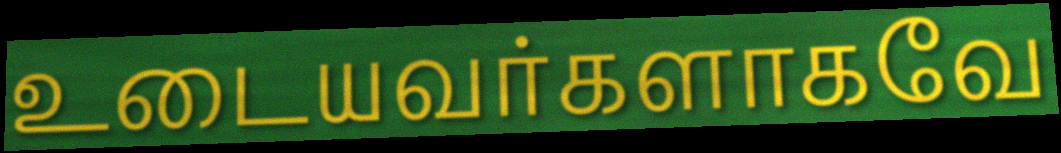
உடையவர்களாகவே